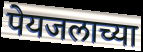
पेयजलाच्या